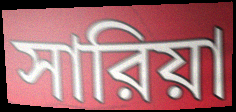
সারিয়া